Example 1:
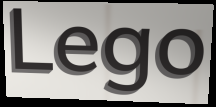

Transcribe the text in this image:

Lego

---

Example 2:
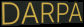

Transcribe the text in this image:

DARPA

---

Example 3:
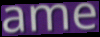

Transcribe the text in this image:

ame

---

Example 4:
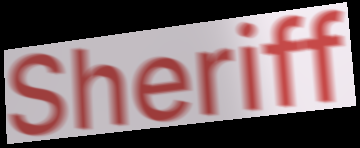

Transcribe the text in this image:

Sheriff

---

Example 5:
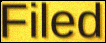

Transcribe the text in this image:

Filed